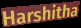
Harshitha